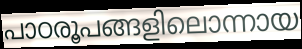
പാഠരൂപങ്ങളിലൊന്നായ